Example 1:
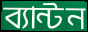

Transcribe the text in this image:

ব্যান্টন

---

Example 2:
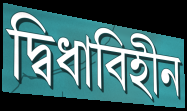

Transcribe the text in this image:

দ্বিধাবিহীন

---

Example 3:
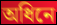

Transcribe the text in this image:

অধিনে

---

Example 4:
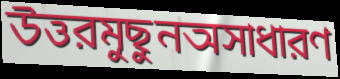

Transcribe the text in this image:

উত্তরমুছুনঅসাধারণ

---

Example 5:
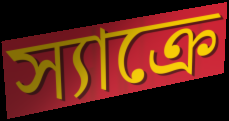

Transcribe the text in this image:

স্যাক্রে